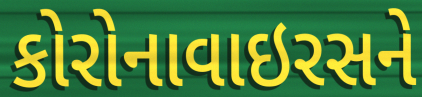
કોરોનાવાઇરસને